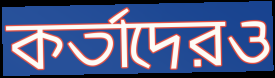
কর্তাদেরও